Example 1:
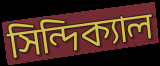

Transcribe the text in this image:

সিন্দিক্যাল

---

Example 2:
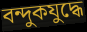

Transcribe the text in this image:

বন্দুকযুদ্ধে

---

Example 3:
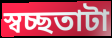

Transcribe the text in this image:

স্বচ্ছতাটা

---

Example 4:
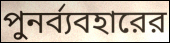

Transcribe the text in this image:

পুনর্ব্যবহারের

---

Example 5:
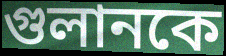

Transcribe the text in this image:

গুলানকে